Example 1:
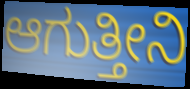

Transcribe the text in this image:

ಆಗುತ್ತೀನಿ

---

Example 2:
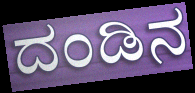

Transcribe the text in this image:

ದಂಡಿನ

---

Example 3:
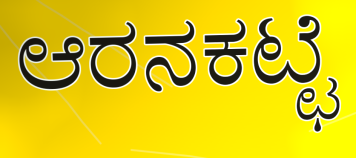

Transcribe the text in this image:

ಆರನಕಟ್ಟೆ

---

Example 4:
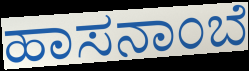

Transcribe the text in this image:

ಹಾಸನಾಂಬೆ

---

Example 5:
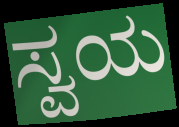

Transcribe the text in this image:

ಸ್ವಯ